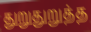
துறுதுறுத்த